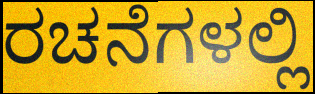
ರಚನೆಗಳಲ್ಲಿ